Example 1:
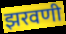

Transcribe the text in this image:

झरवणी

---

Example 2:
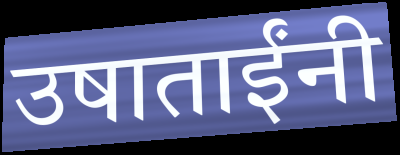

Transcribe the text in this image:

उषाताईंनी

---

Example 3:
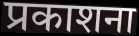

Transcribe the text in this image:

प्रकाशना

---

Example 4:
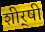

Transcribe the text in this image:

शीर्षी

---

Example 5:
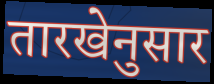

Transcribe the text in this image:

तारखेनुसार